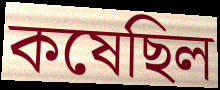
কষেছিল